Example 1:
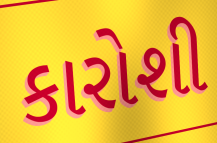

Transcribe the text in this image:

કારોશી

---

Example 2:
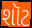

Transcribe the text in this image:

શૉટ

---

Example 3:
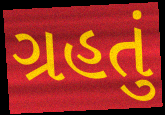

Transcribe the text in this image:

ગ્રહતું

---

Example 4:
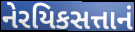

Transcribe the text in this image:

નેરયિકસત્તાનં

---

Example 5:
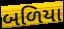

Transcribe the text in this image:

બળિયા